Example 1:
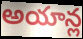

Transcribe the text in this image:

అయాన్ల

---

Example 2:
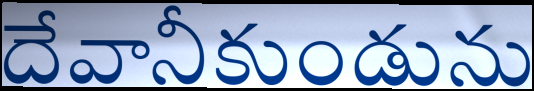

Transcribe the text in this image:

దేవానీకుండును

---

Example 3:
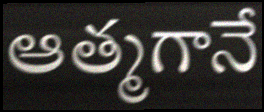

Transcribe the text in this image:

ఆత్మగానే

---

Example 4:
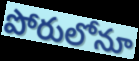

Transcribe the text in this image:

పోరులోనూ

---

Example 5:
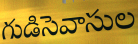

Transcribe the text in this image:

గుడిసెవాసుల